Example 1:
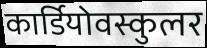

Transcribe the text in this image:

कार्डियोवस्कुलर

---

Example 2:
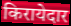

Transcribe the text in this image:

किरायेदार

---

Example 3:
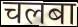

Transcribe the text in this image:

चलबा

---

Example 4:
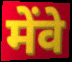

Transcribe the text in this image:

मेंवे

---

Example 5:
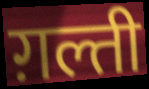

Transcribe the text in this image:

ग़ल्ती